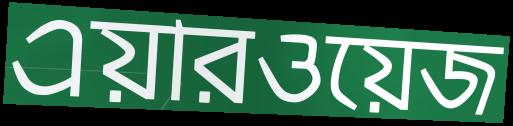
এয়ারওয়েজ